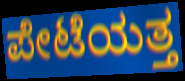
ಪೇಟೆಯತ್ತ